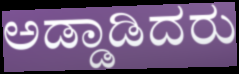
ಅಡ್ಡಾಡಿದರು